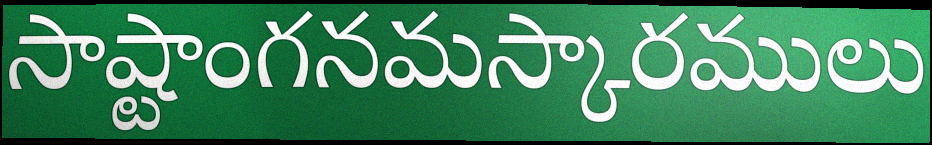
సాష్టాంగనమస్కారములు